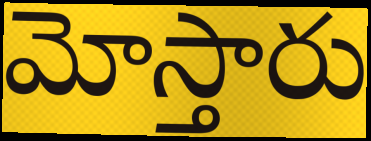
మోస్తారు